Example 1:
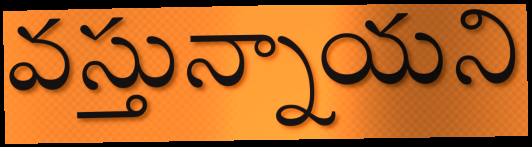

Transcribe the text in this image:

వస్తున్నాయని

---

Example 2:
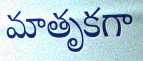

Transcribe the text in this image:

మాతృకగా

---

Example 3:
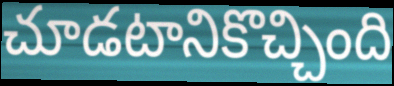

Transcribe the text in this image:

చూడటానికొచ్చింది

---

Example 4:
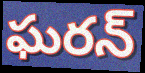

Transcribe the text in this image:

ఘరన్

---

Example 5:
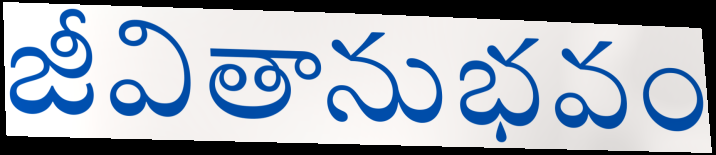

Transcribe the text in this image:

జీవితానుభవం